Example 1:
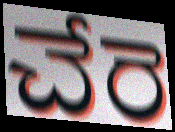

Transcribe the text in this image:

చేరె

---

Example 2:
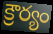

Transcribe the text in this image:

క్రౌర్యం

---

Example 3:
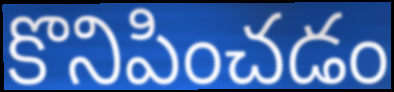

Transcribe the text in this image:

కొనిపించడం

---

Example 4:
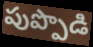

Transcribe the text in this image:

పుప్పొడి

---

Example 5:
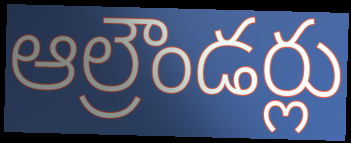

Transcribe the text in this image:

ఆల్రౌండర్లు